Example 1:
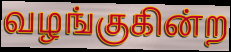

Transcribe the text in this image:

வழங்குகின்ற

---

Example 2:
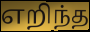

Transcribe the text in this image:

எறிந்த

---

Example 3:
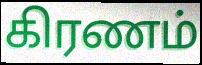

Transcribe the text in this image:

கிரணம்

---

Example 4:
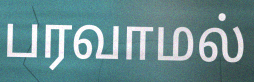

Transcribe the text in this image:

பரவாமல்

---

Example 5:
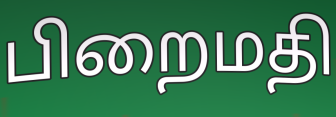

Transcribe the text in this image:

பிறைமதி